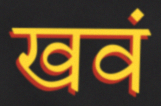
खवं